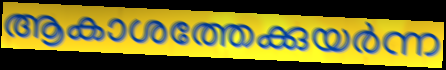
ആകാശത്തേക്കുയർന്ന